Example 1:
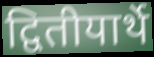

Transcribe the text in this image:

द्वितीयार्थे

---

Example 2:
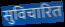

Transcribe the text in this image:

सुविचारित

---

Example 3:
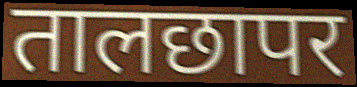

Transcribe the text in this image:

तालछापर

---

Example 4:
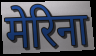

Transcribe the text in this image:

मेरिना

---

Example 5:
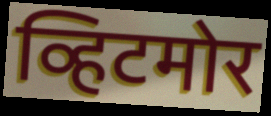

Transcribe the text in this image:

व्हिटमोर